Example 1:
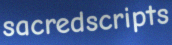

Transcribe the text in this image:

sacredscripts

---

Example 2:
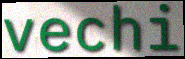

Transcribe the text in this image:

vechi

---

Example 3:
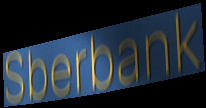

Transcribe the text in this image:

Sberbank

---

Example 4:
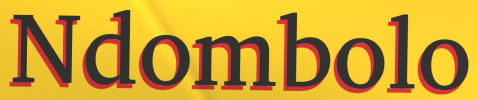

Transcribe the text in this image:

Ndombolo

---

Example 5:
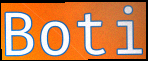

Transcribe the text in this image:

Boti